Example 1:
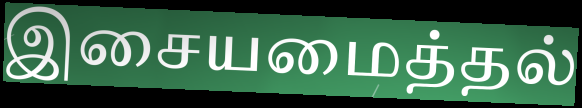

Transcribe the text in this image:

இசையமைத்தல்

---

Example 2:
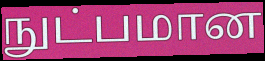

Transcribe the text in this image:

நுட்பமான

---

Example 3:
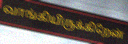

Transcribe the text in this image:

வாங்கியிருக்கிறேன்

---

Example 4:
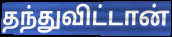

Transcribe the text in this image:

தந்துவிட்டான்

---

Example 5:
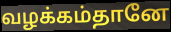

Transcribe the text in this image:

வழக்கம்தானே